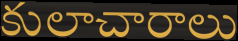
కులాచారాలు